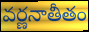
వర్ణనాతీతం